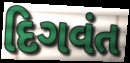
દિગવંત